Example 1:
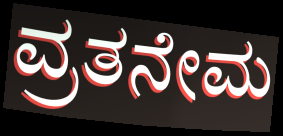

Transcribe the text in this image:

ವ್ರತನೇಮ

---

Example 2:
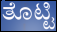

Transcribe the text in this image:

ತೊಟ್ಟಿ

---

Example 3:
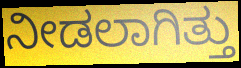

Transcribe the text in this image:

ನೀಡಲಾಗಿತ್ತು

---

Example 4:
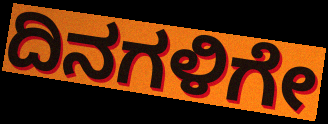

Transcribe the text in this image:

ದಿನಗಳಿಗೇ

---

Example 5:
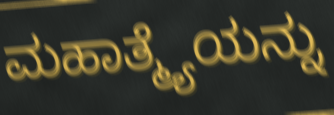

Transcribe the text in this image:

ಮಹಾತ್ಮ್ಯೆಯನ್ನು